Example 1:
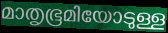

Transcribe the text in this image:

മാതൃഭൂമിയോടുള്ള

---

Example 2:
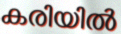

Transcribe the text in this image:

കരിയിൽ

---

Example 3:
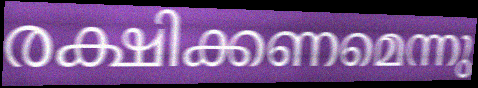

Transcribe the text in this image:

രക്ഷിക്കണമെന്നു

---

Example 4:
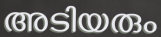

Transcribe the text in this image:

അടിയരും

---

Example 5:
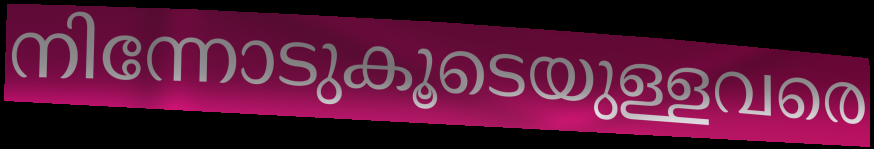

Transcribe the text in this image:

നിന്നോടുകൂടെയുള്ളവരെ